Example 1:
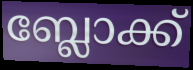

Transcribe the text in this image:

ബ്ലോക്ക്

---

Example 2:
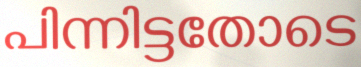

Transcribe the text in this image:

പിന്നിട്ടതോടെ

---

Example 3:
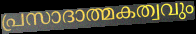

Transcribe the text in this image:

പ്രസാദാത്മകത്വവും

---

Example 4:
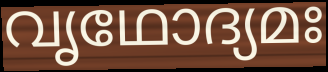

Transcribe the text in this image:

വൃഥോദ്യമഃ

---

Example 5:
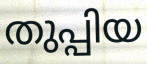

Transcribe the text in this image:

തുപ്പിയ